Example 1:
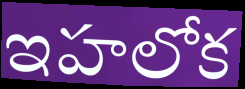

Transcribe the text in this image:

ఇహలోక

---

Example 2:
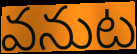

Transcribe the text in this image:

వనుట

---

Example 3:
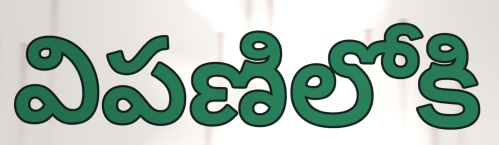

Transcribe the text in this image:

విపణిలోకి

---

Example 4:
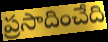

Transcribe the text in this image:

ప్రసాదించేది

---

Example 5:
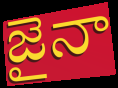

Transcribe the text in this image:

జైనా